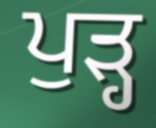
ਪੁੜ੍ਹ